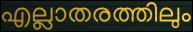
എല്ലാതരത്തിലും